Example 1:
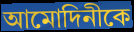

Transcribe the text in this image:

আমোদিনীকে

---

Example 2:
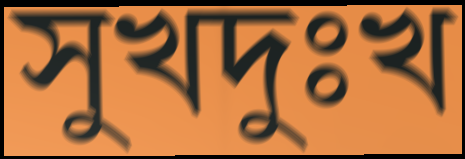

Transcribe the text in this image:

সুখদুঃখ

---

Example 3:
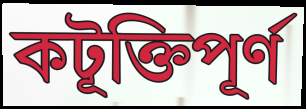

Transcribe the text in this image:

কটূক্তিপূর্ণ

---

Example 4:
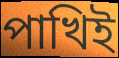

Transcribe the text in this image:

পাখিই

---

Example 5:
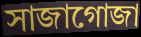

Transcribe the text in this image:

সাজাগোজা